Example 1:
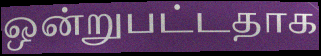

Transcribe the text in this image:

ஒன்றுபட்டதாக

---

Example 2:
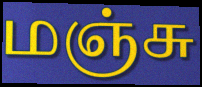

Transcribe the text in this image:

மஞ்சு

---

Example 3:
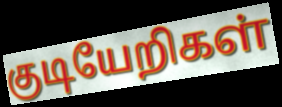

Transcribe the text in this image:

குடியேறிகள்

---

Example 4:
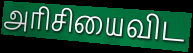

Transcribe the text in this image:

அரிசியைவிட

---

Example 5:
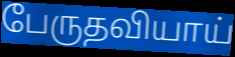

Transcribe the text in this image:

பேருதவியாய்